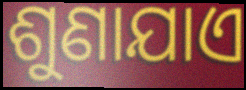
ଶୁଣାଯାଏ